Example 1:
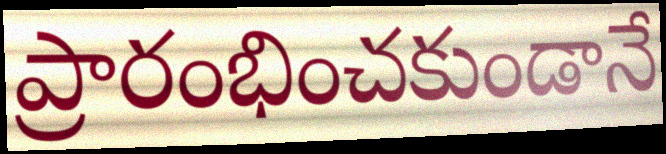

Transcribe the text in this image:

ప్రారంభించకుండానే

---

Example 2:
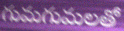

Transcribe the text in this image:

గుమగుమలతో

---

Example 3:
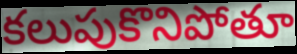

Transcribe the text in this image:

కలుపుకొనిపోతూ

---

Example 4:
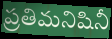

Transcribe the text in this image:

ప్రతిమనిషినీ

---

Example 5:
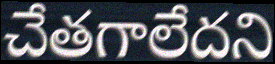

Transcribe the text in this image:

చేతగాలేదని